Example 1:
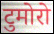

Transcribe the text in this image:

टुमोरो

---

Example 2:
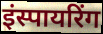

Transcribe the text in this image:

इंस्पायरिंग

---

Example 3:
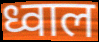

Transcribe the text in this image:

ध्वाल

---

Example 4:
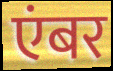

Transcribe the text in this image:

एंबर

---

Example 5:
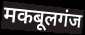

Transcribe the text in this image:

मकबूलगंज